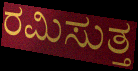
ರಮಿಸುತ್ತ